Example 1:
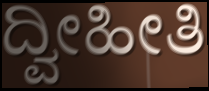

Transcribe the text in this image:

ದ್ವೀಹೀತಿ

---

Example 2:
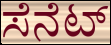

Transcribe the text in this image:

ಸೆನೆಟ್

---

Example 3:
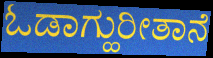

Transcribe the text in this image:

ಓಡಾಗ್ಹುರೀತಾನೆ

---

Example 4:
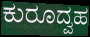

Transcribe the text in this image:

ಕುರೂದ್ವಹ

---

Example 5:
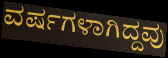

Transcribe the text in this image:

ವರ್ಷಗಳಾಗಿದ್ದವು